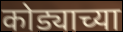
कोड्याच्या